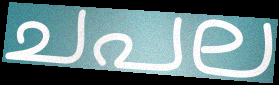
ചപല